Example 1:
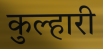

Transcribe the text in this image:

कुल्हारी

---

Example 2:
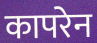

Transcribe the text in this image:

कापरेन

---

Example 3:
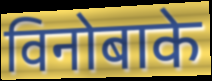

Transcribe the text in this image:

विनोबाके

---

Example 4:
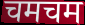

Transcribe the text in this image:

चमचम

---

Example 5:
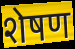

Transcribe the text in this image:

शेषण